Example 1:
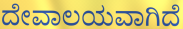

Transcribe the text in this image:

ದೇವಾಲಯವಾಗಿದೆ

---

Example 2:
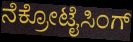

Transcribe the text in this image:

ನೆಕ್ರೋಟೈಸಿಂಗ್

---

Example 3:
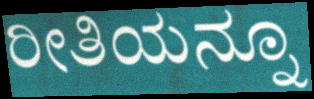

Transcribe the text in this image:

ರೀತಿಯನ್ನೂ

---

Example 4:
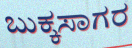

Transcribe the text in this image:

ಬುಕ್ಕಸಾಗರ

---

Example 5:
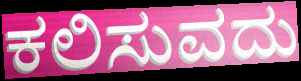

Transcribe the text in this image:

ಕಲಿಸುವದು